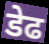
डेढ